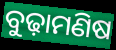
ବୁଢ଼ାମଣିଷ